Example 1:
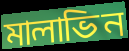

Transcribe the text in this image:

মালাভিন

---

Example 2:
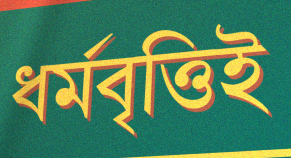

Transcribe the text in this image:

ধর্মবৃত্তিই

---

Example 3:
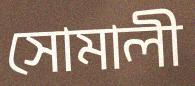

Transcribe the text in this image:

সোমালী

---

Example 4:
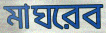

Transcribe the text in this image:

মাঘরেব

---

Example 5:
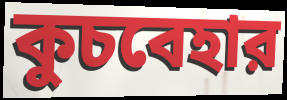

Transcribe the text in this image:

কুচবেহার